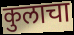
कुलाचा